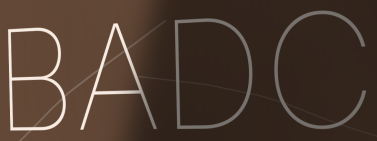
BADC